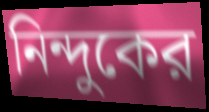
নিন্দুকের